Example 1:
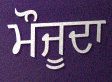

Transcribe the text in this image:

ਮੌਜੂਦਾ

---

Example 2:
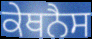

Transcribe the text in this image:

ਕੇਥਨੈਸ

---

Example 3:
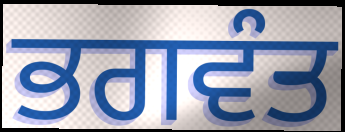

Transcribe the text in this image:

ਭਗਵੰਤ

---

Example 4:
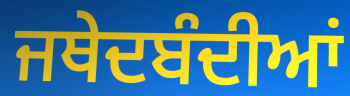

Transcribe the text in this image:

ਜਥੇਦਬੰਦੀਆਂ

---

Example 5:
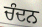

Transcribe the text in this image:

ਚੰਦਨ